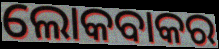
ଲୋକବାକର